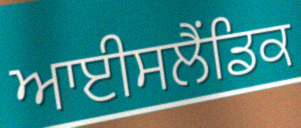
ਆਈਸਲੈਂਡਿਕ